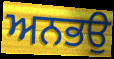
ਅਨਭਉ